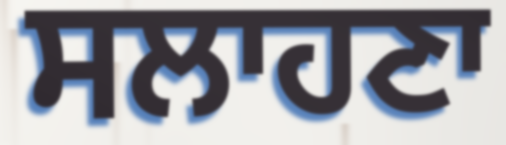
ਸਲਾਹਣਾ